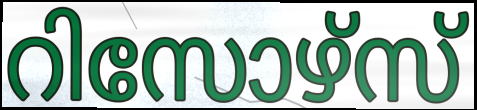
റിസോഴ്സ്